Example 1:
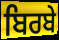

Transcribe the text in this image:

ਬਿਰਬੇ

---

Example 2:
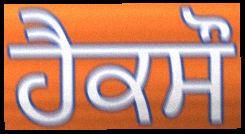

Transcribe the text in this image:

ਹੈਕਸੌ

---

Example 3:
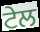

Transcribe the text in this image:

ਟੇਲ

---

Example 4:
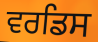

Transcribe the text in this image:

ਵਰਡਿਸ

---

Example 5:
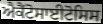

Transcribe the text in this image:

ਐਕੈਂਟੋਸਾਈਟੋਸਿਸ